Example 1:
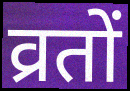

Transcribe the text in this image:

व्रतों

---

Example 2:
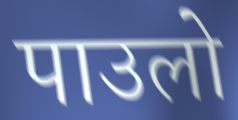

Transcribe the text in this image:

पाउलो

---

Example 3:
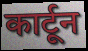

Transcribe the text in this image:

कार्टून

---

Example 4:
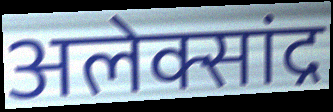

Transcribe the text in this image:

अलेक्सांद्र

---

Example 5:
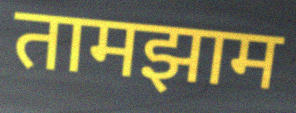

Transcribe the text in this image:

तामझाम